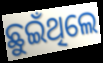
ଛୁଇଁଥିଲେ